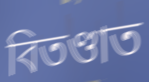
বিতণ্ডাত